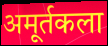
अमूर्तकला